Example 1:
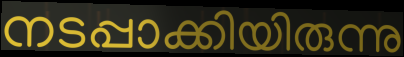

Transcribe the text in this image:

നടപ്പാക്കിയിരുന്നു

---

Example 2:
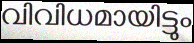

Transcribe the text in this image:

വിവിധമായിട്ടും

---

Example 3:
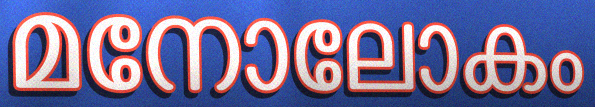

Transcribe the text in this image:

മനോലോകം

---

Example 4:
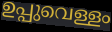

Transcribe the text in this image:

ഉപ്പുവെള്ളം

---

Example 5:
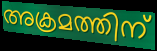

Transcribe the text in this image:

അക്രമത്തിന്